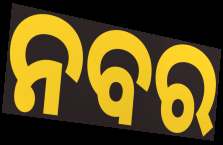
ନବର